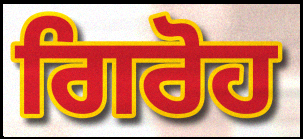
ਗਿਰੋਹ